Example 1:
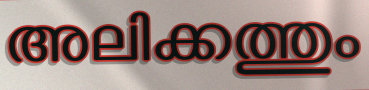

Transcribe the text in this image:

അലിക്കത്തും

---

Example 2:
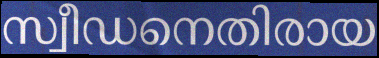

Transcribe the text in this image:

സ്വീഡനെതിരായ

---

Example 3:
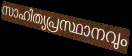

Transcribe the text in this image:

സാഹിത്യപ്രസ്ഥാനവും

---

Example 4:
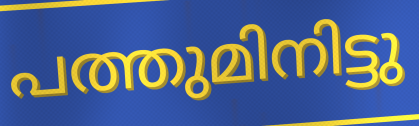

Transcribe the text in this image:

പത്തുമിനിട്ടു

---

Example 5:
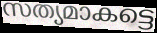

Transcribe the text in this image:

സത്യമാകട്ടെ